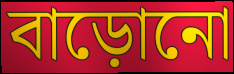
বাড়োনো